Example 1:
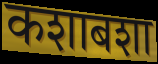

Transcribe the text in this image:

कशाबशा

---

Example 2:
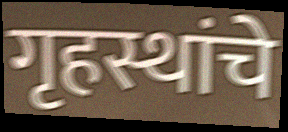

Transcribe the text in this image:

गृहस्थांचे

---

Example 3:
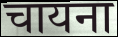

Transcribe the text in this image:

चायना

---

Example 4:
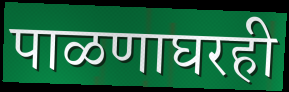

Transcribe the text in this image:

पाळणाघरही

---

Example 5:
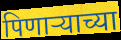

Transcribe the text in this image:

पिणाऱ्याच्या